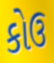
કોઉ